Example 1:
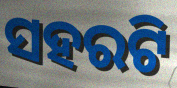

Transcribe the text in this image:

ସହରଟି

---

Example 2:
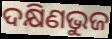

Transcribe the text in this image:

ଦକ୍ଷିଣଭୁଜ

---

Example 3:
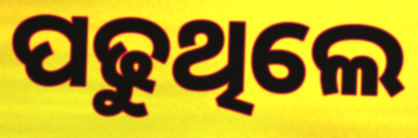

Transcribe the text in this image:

ପଢୁଥିଲେ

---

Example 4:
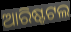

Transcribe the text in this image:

ଆରିଷ୍ଟଟଲ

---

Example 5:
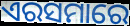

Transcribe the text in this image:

ଏରସମାରେ